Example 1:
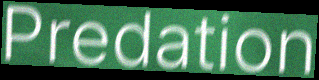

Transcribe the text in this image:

Predation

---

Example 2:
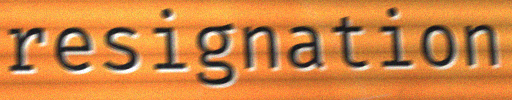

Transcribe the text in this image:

resignation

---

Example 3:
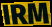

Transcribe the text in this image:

IRM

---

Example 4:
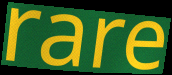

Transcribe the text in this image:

rare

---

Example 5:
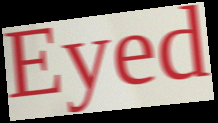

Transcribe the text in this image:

Eyed